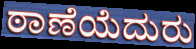
ಠಾಣೆಯೆದುರು